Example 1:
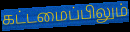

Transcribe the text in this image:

கட்டமைப்பிலும்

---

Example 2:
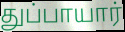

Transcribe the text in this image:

துப்பாயார்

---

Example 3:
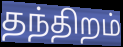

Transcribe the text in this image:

தந்திறம்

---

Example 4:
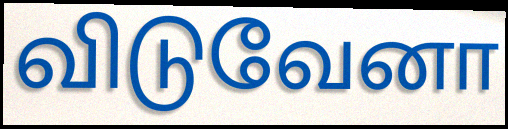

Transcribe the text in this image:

விடுவேனா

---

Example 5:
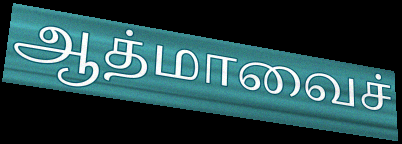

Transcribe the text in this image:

ஆத்மாவைச்